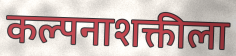
कल्पनाशक्तीला